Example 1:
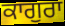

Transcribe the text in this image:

ਕਾਗੁਰਾ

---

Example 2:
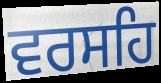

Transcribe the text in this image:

ਵਰਸਹਿ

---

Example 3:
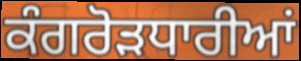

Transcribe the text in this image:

ਕੰਗਰੋੜਧਾਰੀਆਂ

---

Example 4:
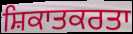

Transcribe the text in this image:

ਸ਼ਿਕਾਤਕਰਤਾ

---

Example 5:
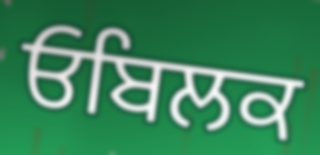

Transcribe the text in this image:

ਓਬਿਲਕ